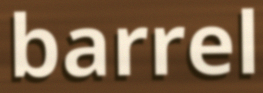
barrel